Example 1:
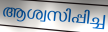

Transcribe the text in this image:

ആശ്വസിപ്പിച്ച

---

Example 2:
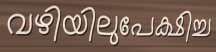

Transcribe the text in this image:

വഴിയിലുപേക്ഷിച്ച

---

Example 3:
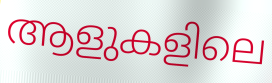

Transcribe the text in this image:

ആളുകളിലെ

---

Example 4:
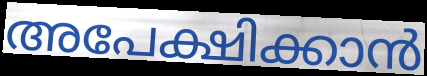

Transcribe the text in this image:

അപേക്ഷിക്കാൻ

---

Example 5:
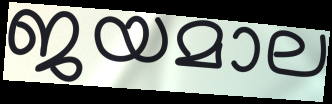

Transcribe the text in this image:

ജയമാല